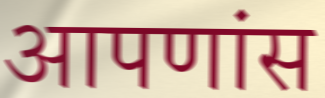
आपणांस